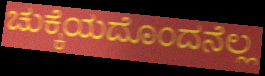
ಚುಕ್ಕೆಯದೊಂದನೆಲ್ಲ